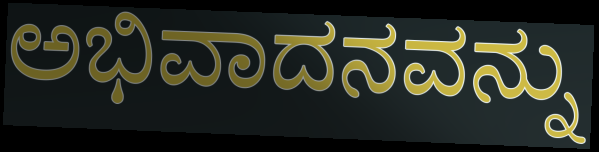
ಅಭಿವಾದನವನ್ನು